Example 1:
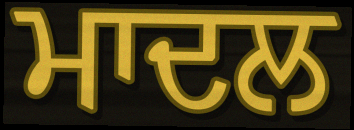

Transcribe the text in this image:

ਮਾਦਲ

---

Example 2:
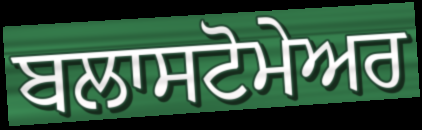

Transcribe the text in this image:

ਬਲਾਸਟੋਮੇਅਰ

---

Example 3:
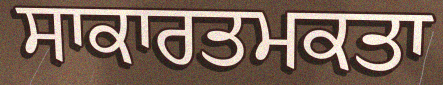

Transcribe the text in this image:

ਸਾਕਾਰਤਮਕਤਾ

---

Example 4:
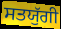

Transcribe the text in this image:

ਸਤਯੁੱਗੀ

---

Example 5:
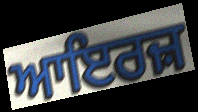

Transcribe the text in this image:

ਆਇਰਜ਼